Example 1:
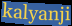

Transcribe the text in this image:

kalyanji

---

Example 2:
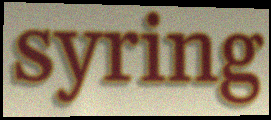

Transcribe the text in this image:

syring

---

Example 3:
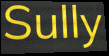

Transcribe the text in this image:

Sully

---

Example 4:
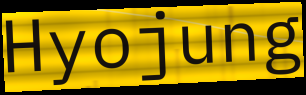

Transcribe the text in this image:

Hyojung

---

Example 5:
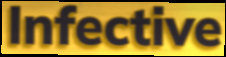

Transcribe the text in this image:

Infective